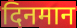
दिनमान